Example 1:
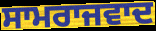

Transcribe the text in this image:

ਸਾਮਰਾਜਵਾਦ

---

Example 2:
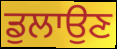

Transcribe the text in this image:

ਡੁਲਾਉਣ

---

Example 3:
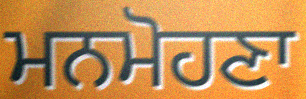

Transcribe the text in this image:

ਮਨਮੋਹਣਾ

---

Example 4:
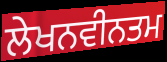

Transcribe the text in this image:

ਲੇਖਨਵੀਨਤਮ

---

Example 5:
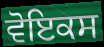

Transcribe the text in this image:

ਵੋਇਕਸ